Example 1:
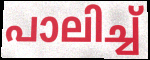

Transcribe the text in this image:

പാലിച്ച്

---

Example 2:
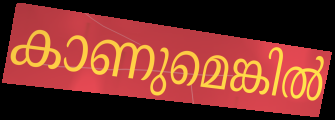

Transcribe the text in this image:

കാണുമെങ്കിൽ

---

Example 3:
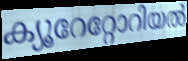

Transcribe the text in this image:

ക്യൂറേറ്റോറിയൽ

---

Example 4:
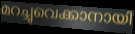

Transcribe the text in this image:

മറച്ചുവെക്കാനായി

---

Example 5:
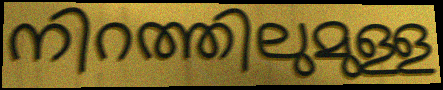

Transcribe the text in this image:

നിറത്തിലുമുള്ള